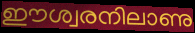
ഈശ്വരനിലാണു